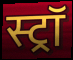
स्ट्रॉ